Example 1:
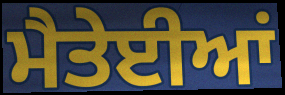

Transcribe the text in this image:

ਮੈਤੇਈਆਂ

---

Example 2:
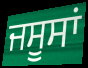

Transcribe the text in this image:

ਜਸੂਸਾਂ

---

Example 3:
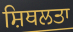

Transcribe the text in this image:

ਸ਼ਿਥਲਤਾ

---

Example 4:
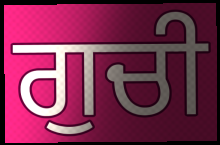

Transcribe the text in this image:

ਗੁਚੀ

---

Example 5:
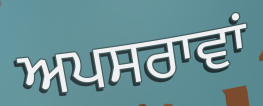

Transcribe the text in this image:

ਅਪਸਰਾਵਾਂ